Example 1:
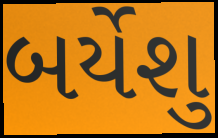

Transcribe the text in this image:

બર્યેશુ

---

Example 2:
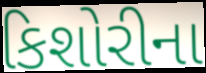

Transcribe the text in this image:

કિશોરીના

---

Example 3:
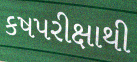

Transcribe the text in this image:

કષપરીક્ષાથી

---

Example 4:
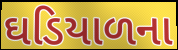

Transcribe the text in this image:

ઘડિયાળના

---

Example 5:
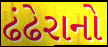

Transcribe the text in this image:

ઢંઢેરાનો